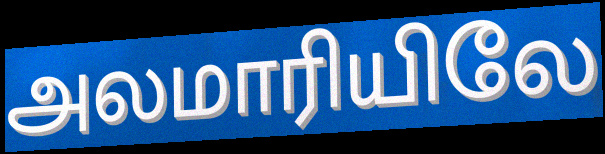
அலமாரியிலே